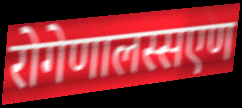
रोगेणालस्सएण